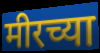
मीरच्या